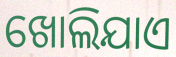
ଖୋଲିଯାଏ